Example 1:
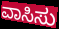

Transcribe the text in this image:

ವಾಸಿಸು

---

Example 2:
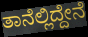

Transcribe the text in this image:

ತಾನೆಲ್ಲಿದ್ದೇನೆ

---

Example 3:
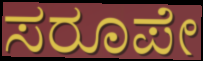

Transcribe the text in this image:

ಸರೂಪೇ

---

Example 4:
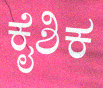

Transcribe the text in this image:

ಕೈಶಿಕ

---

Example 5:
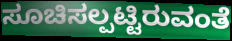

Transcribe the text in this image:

ಸೂಚಿಸಲ್ಪಟ್ಟಿರುವಂತೆ